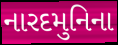
નારદમુનિના